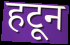
हटून